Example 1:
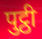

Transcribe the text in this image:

पुट्ठी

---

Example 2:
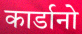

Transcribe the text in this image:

कार्डानो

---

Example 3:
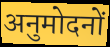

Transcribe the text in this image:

अनुमोदनों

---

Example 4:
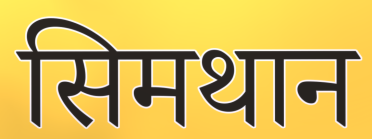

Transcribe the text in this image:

सिमथान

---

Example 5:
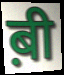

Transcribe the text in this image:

ब़ी